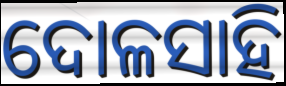
ଦୋଳସାହି